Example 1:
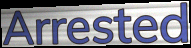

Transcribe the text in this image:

Arrested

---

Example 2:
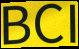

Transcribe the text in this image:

BCI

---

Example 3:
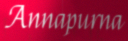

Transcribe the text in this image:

Annapurna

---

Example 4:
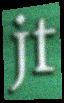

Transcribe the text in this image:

jt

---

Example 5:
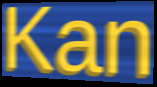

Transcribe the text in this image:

Kan